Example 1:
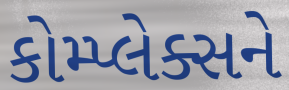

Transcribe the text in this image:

કોમ્પ્લેક્સને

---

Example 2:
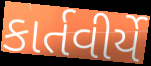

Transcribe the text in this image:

કાર્તવીર્યે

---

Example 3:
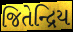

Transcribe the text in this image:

જિતેન્દ્રિય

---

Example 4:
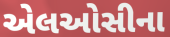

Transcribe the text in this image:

એલઓસીના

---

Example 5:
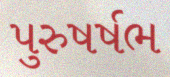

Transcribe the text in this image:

પુરુષર્ષભ